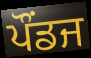
ਪੌਂਡਜ